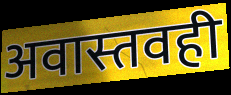
अवास्तवही